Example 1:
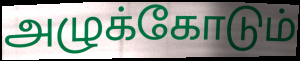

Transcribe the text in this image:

அழுக்கோடும்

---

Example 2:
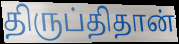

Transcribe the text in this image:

திருப்திதான்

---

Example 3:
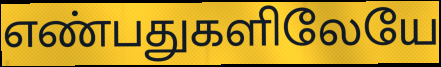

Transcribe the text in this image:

எண்பதுகளிலேயே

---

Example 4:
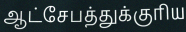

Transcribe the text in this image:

ஆட்சேபத்துக்குரிய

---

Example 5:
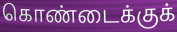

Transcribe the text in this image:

கொண்டைக்குக்